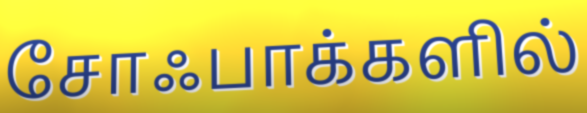
சோஃபாக்களில்